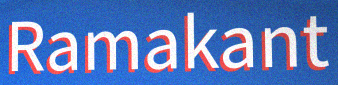
Ramakant